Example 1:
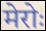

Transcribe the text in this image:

मेरोः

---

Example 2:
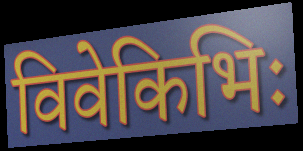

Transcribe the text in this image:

विवेकिभिः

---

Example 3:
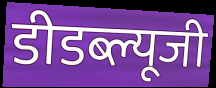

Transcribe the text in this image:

डीडब्ल्यूजी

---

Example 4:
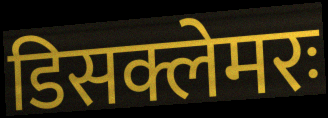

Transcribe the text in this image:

डिसक्लेमरः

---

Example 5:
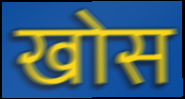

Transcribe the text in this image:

खोस